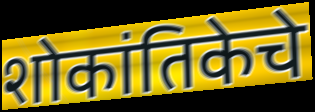
शोकांतिकेचे